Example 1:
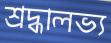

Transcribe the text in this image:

শ্রদ্ধালভ্য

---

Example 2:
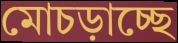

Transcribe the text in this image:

মোচড়াচ্ছে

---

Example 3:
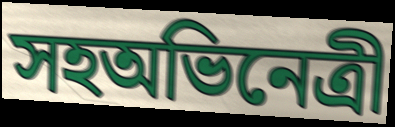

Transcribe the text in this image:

সহঅভিনেত্রী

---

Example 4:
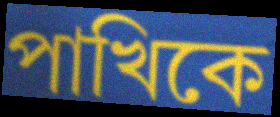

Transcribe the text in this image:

পাখিকে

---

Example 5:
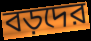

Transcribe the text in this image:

বড়দের